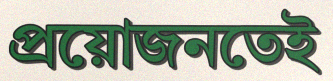
প্ৰয়োজনতেই